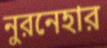
নুরনেহার